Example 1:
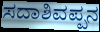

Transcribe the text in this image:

ಸದಾಶಿವಪ್ಪನ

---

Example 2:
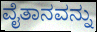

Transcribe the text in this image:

ವೈತಾನವನ್ನು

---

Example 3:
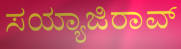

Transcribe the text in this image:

ಸಯ್ಯಾಜಿರಾವ್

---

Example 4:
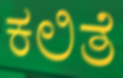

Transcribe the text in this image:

ಕಲಿತೆ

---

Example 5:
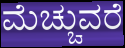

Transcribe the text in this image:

ಮೆಚ್ಚುವರೆ